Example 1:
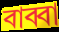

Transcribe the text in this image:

বাব্বা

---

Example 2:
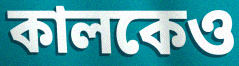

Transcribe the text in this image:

কালকেও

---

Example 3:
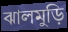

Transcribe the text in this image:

ঝালমুড়ি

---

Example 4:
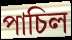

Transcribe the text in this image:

পাচিল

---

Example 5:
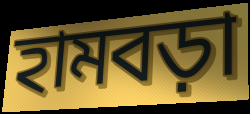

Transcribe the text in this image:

হামবড়া